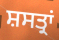
ਸ਼ਸਤ੍ਰਾਂ